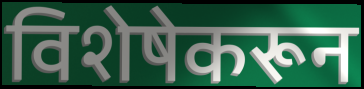
विशेषेकरून